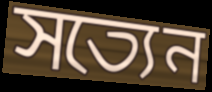
সত্যেন